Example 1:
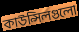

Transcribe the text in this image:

কাউন্সিলগুলো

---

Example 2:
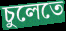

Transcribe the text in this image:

চুলেতে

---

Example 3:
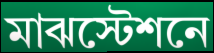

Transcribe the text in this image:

মাঝস্টেশনে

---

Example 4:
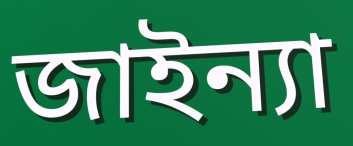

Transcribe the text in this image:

জাইন্যা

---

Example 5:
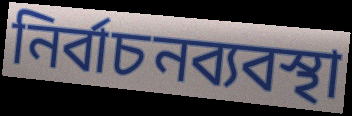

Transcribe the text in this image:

নির্বাচনব্যবস্থা